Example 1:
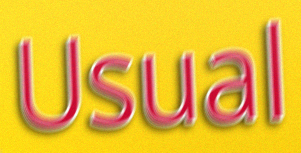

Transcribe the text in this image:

Usual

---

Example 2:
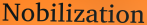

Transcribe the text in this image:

Nobilization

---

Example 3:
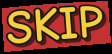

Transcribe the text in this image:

SKIP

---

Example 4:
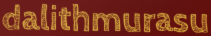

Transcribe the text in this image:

dalithmurasu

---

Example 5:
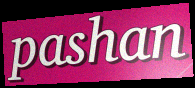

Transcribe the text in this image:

pashan